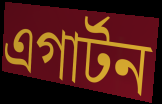
এগার্টন